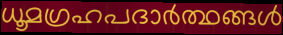
ധൂമഗ്രഹപദാർത്ഥങ്ങൾ